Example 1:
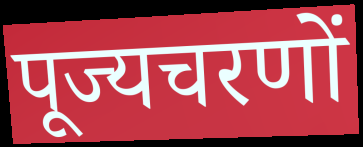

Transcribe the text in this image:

पूज्यचरणों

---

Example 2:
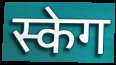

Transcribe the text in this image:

स्केग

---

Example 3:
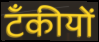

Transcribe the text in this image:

टँकीयों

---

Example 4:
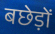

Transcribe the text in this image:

बछेड़ों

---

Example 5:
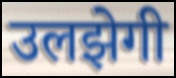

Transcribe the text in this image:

उलझेगी